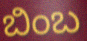
ಬಿಂಬ